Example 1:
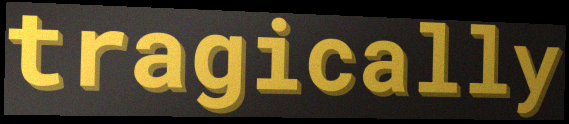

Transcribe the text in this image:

tragically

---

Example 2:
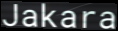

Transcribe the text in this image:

Jakara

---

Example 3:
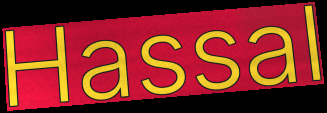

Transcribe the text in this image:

Hassal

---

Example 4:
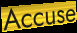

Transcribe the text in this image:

Accuse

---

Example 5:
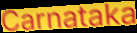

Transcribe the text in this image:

Carnataka